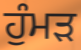
ਹੁੰਮੜ